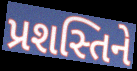
પ્રશસ્તિને